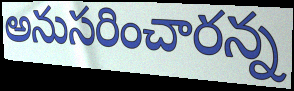
అనుసరించారన్న